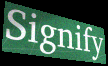
Signify